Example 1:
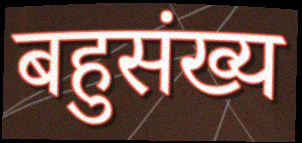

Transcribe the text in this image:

बहुसंख्य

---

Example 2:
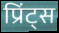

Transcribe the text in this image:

प्रिंट्स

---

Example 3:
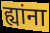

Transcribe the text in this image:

ह्यांना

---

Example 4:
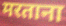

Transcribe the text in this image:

मरताना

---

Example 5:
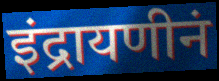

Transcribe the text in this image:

इंद्रायणीनं